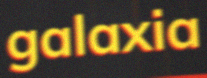
galaxia